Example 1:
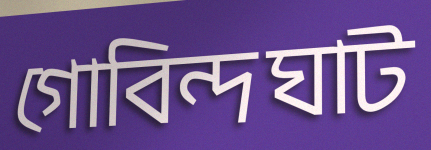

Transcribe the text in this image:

গোবিন্দঘাট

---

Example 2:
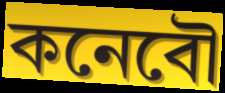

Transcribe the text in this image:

কনেবৌ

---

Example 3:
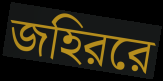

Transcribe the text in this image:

জহিররে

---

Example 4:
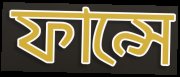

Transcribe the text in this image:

ফান্সে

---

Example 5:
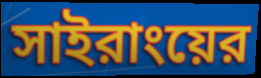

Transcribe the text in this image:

সাইরাংয়ের